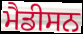
ਮੈਡੀਸਨ